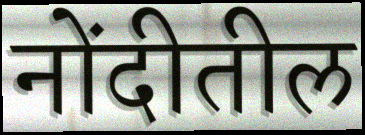
नोंदीतील